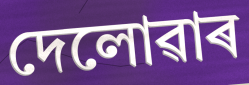
দেলোৱাৰ